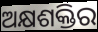
ଅକ୍ଷଶକ୍ତିର